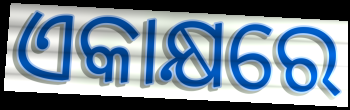
ଏକାକ୍ଷରେ